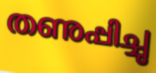
തണുപ്പിച്ചു